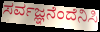
ಸರ್ವಜ್ಞನೆಂದೆನಿಸಿ